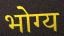
भोग्य